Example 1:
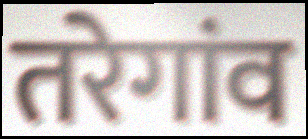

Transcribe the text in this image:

तरेगांव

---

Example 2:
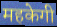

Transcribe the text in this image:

महकेगी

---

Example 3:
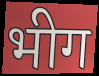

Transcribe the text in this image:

भीग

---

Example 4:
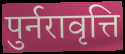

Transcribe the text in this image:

पुर्नरावृत्ति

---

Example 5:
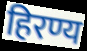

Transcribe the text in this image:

हिरण्य